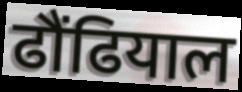
ढौंढियाल